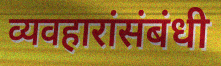
व्यवहारांसंबंधी